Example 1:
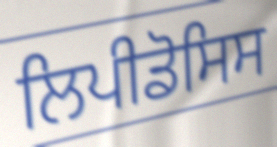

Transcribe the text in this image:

ਲਿਪੀਡੋਸਿਸ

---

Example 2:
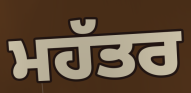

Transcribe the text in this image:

ਮਹੱਤਰ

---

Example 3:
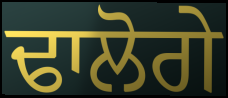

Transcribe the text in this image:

ਢਾਲੋਗੇ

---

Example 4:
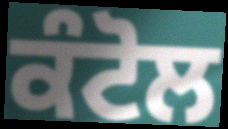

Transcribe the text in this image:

ਕੰਟੋਲ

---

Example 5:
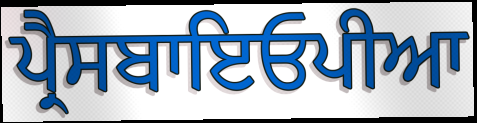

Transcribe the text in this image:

ਪ੍ਰੈਸਬਾਇਓਪੀਆ